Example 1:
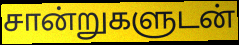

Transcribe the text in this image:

சான்றுகளுடன்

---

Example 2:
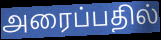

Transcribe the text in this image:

அரைப்பதில்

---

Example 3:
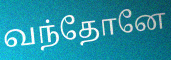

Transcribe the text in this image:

வந்தோனே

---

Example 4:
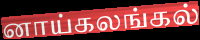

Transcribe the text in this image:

னாய்கலங்கல்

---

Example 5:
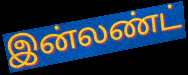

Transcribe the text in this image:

இன்லண்ட்